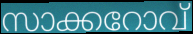
സാക്കറോവ്